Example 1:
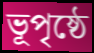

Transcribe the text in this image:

ভূপৃষ্ঠে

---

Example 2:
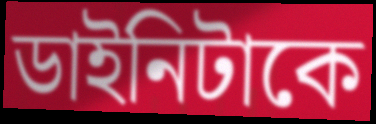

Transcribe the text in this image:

ডাইনিটাকে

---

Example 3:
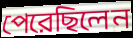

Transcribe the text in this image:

পেরেছিলেন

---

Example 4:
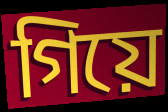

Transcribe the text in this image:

গিয়ে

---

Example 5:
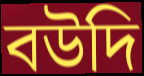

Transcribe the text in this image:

বউদি